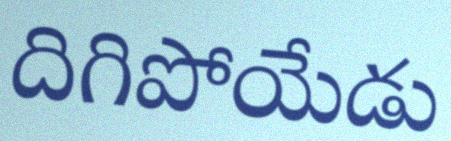
దిగిపోయేడు